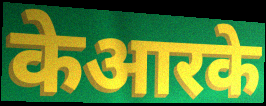
केआरके